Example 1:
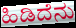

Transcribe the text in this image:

ಹಿಡಿದೆನು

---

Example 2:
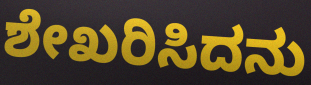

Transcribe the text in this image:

ಶೇಖರಿಸಿದನು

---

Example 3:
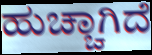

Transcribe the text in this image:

ಹುಚ್ಚಾಗಿದೆ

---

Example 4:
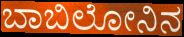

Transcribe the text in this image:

ಬಾಬಿಲೋನಿನ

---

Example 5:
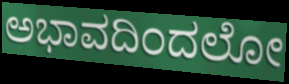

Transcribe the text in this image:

ಅಭಾವದಿಂದಲೋ